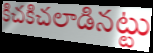
కిచకిచలాడినట్టు